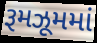
રૂમઝૂમમાં